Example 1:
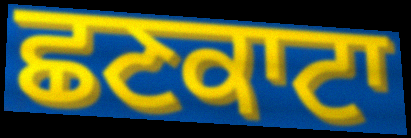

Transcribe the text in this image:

ਛਣਕਾਟਾ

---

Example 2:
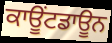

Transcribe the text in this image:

ਕਾਊਂਟਡਾਊਨ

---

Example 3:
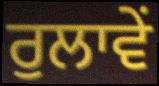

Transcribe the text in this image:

ਰੁਲਾਵੇਂ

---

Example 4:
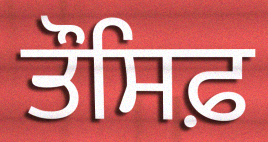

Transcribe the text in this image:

ਤੌਸਿਫ਼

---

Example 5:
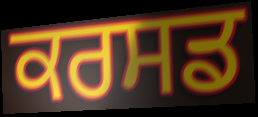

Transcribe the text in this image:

ਕਰਸਡ